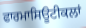
ਫਾਰਮਾਸਿਊਟੀਕਲਾਂ